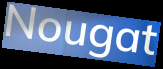
Nougat